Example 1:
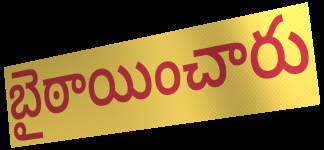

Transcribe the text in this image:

బైఠాయించారు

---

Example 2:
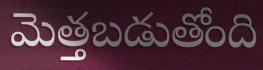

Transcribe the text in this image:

మెత్తబడుతోంది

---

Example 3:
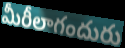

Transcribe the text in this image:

మీరీలాగందురు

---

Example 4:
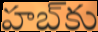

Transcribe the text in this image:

హబ్‌కు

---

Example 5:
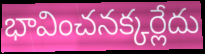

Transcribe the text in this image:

భావించనక్కర్లేదు